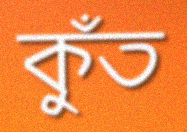
কুঁত